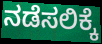
ನಡೆಸಲಿಕ್ಕೆ